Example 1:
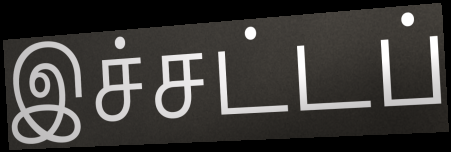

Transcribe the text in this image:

இச்சட்டப்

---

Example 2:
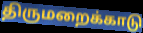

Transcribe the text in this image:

திருமறைக்காடு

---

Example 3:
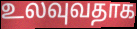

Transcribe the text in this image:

உலவுவதாக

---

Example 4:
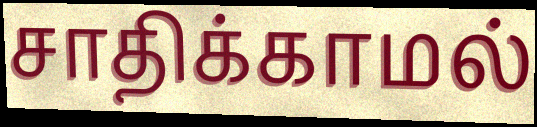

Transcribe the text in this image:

சாதிக்காமல்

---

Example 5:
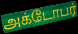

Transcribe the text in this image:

அக்டோபர்